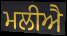
ਮਲੀਐ